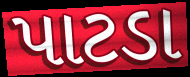
પાટડા